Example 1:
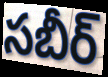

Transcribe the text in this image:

సబీర్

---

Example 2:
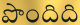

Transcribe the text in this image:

పొందిది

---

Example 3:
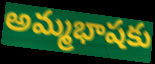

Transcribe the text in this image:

అమ్మభాషకు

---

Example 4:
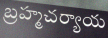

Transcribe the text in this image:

బ్రహ్మచర్యాయ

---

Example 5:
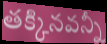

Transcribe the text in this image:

తక్కినవన్నీ